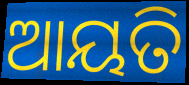
ଆୟତି